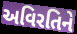
અવિરતિને